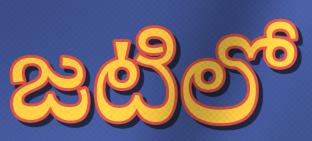
జటిలో